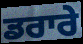
ਡਰਾਰੇ